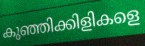
കുഞ്ഞിക്കിളികളെ